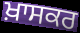
ਖ਼ਾਸਕਰ